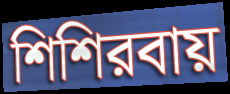
শিশিরবায়